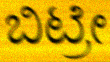
ಬಿಟ್ರೇ